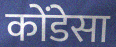
कोंडेसा